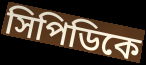
সিপিডিকে